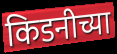
किडनीच्या